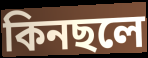
কিনছলে